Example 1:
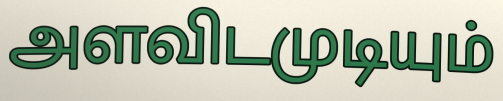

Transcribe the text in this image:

அளவிடமுடியும்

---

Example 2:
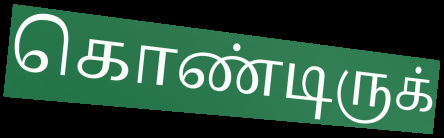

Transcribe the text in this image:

கொண்டிருக்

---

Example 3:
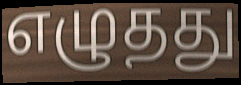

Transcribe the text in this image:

எழுதது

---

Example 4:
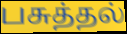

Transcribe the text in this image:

பசுத்தல்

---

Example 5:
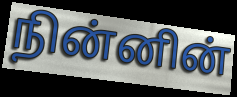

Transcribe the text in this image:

நின்னின்